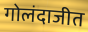
गोलंदाजीत